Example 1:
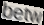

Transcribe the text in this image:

betw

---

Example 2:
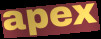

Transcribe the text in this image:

apex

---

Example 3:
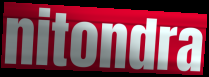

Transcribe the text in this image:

nitondra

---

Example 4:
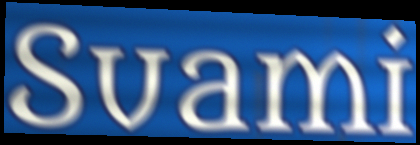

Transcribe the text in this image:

Suami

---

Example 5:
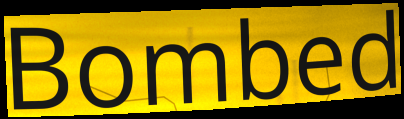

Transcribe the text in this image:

Bombed